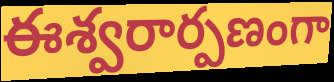
ఈశ్వరార్పణంగా